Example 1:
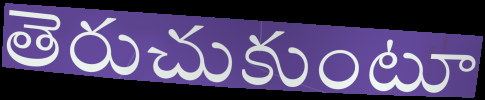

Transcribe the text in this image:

తెరుచుకుంటూ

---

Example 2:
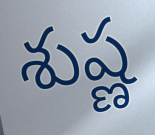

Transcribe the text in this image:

శుష్ణ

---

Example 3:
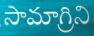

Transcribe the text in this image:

సామాగ్రిని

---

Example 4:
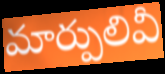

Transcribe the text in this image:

మార్పులివీ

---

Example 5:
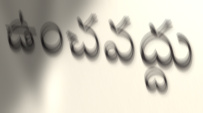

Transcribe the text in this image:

ఉంచవద్దు